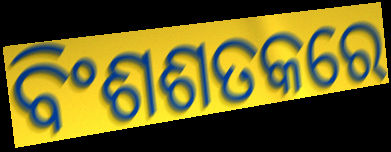
ବିଂଶଶତକରେ